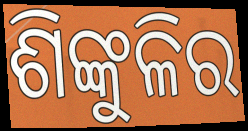
ଶିଙ୍କୁଳିର